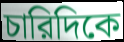
চারিদিকে